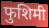
फुशिमी